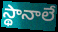
స్థానాలే